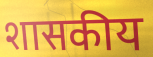
शासकीय